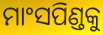
ମାଂସପିଣ୍ଡକୁ